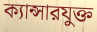
ক্যান্সারযুক্ত